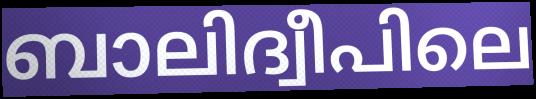
ബാലിദ്വീപിലെ